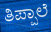
ತಿಪ್ಪಾಲೆ